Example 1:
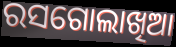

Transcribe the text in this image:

ରସଗୋଲାଖିଆ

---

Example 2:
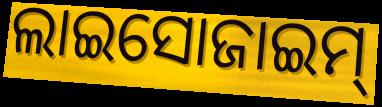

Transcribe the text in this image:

ଲାଇସୋଜାଇମ୍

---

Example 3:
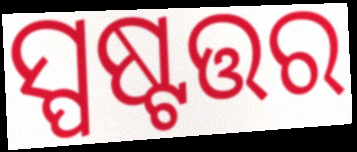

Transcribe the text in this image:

ସ୍ପଷ୍ଟତ୍ତର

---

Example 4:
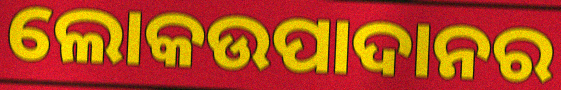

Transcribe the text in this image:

ଲୋକଉପାଦାନର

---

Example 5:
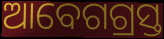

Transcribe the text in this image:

ଆବେଗଗ୍ରସ୍ତ